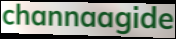
channaagide